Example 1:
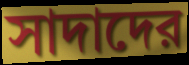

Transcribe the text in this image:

সাদাদের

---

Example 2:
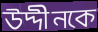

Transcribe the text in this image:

উদ্দীনকে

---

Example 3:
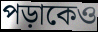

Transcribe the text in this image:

পড়াকেও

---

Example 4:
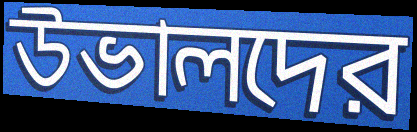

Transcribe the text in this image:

উভালদের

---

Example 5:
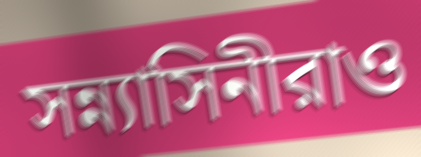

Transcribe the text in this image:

সন্ন্যাসিনীরাও